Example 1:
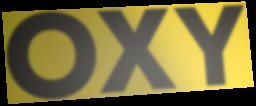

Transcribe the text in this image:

OXY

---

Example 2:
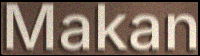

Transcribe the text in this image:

Makan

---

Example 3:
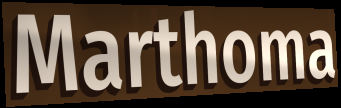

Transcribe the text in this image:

Marthoma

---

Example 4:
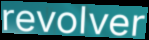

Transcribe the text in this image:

revolver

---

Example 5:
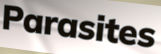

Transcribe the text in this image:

Parasites